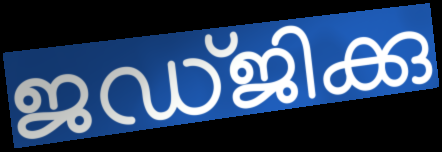
ജഡ്ജിക്കു